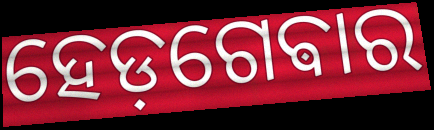
ହେଡ଼ଗେଵାର